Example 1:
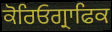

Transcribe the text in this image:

ਕੋਰਿਓਗ੍ਰਾਫਿਕ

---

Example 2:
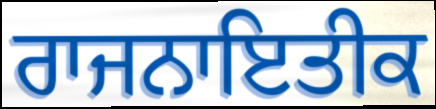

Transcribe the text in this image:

ਰਾਜਨਾਇਤੀਕ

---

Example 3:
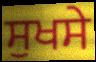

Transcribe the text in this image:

ਸੁਖਸੇ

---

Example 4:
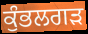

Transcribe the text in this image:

ਕੁੰਭਲਗੜ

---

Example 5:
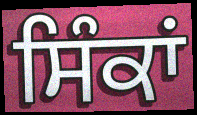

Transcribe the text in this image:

ਸਿੰਕਾਂ